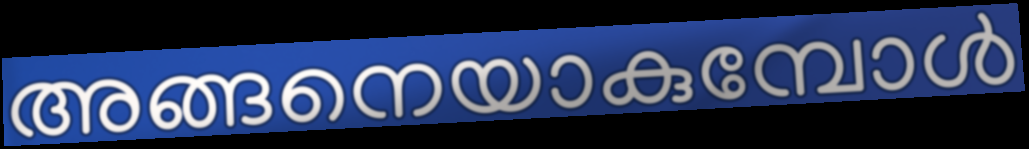
അങ്ങനെയാകുമ്പോൾ